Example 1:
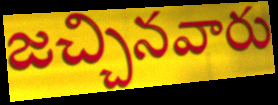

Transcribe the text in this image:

జచ్చినవారు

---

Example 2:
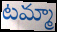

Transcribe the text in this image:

టమ్మా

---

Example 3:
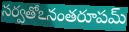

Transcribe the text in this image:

సర్వతోఽనంతరూపమ్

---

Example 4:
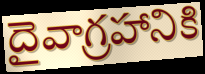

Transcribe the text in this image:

దైవాగ్రహానికి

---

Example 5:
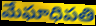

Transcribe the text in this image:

మేఘాధిపతి